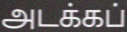
அடக்கப்